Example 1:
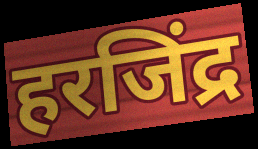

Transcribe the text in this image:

हरजिंद्र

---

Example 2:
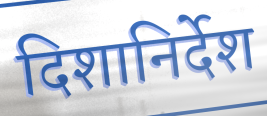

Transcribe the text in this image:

दिशानिर्देश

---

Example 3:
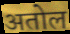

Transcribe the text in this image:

अतोल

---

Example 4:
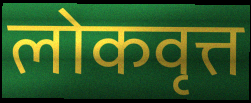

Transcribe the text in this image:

लोकवृत्त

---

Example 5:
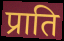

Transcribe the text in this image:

प्राति